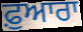
ਫ਼ੁਆਰਾ